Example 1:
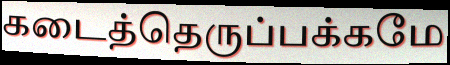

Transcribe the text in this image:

கடைத்தெருப்பக்கமே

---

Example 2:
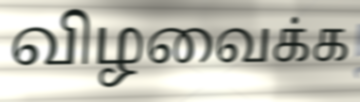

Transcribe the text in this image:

விழவைக்க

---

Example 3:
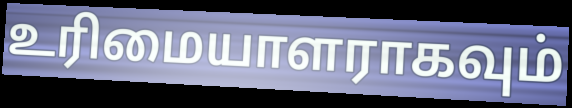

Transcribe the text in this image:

உரிமையாளராகவும்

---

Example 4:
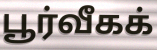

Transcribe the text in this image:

பூர்வீகக்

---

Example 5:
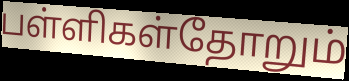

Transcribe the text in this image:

பள்ளிகள்தோறும்